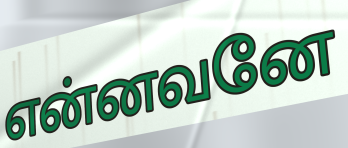
என்னவனே